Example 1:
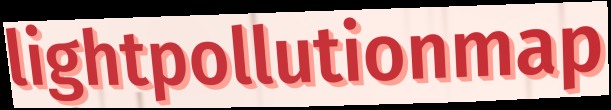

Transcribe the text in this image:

lightpollutionmap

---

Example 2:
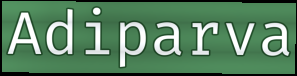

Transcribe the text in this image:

Adiparva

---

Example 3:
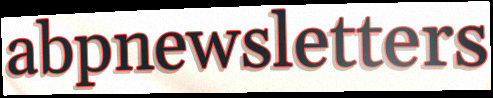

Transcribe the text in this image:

abpnewsletters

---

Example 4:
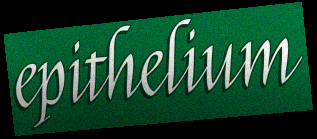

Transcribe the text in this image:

epithelium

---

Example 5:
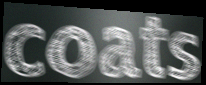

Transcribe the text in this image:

coats